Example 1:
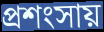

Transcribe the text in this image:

প্রশংসায়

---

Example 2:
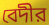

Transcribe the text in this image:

বেদীর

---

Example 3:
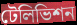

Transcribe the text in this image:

টেলিভিশন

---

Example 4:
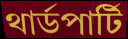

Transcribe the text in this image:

থার্ডপার্টি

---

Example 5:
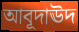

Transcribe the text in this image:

আবূদাঊদ